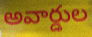
అవార్డుల